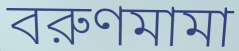
বরুণমামা